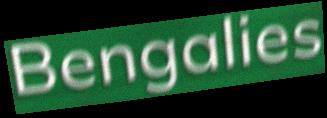
Bengalies